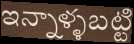
ఇన్నాళ్ళబట్టి